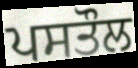
ਪਸਤੌਲ